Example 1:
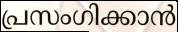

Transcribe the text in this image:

പ്രസംഗിക്കാൻ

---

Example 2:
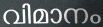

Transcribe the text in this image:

വിമാനം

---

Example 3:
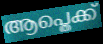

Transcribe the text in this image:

ആപ്തെക്ക്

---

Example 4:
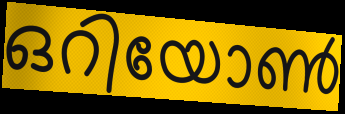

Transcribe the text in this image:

ഒറിയോൺ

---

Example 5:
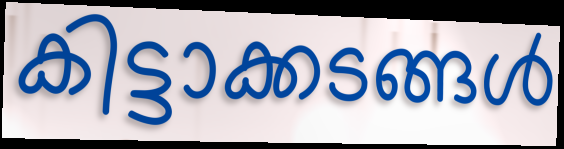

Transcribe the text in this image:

കിട്ടാക്കടങ്ങൾ